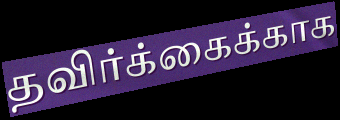
தவிர்க்கைக்காக